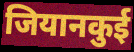
जियानकुई